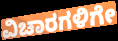
ವಿಚಾರಗಳಿಗೇ